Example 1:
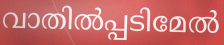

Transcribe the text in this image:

വാതിൽപ്പടിമേൽ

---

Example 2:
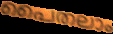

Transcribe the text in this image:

പൈതലാം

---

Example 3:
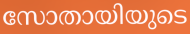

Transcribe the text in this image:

സോതായിയുടെ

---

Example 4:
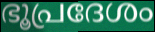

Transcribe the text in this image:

ഭൂപ്രദേശം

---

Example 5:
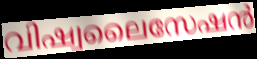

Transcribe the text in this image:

വിഷ്വലൈസേഷൻ